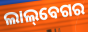
ଲାଲ୍‌ବେଗର